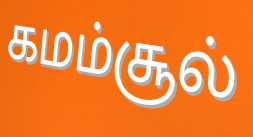
கமம்சூல்